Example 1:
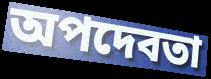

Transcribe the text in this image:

অপদেবতা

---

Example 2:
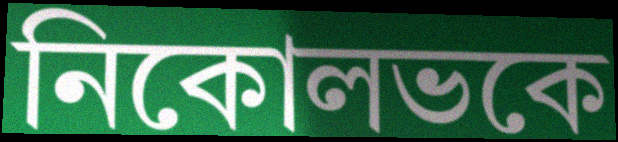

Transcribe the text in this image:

নিকোলভকে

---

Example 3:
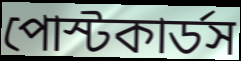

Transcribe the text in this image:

পোস্টকার্ডস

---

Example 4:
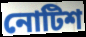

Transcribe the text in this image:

নোটিশ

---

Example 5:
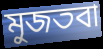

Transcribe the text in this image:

মুজতবা